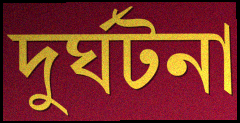
দুর্ঘটনা